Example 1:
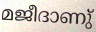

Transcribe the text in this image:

മജീദാണു്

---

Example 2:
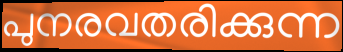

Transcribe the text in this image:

പുനരവതരിക്കുന്ന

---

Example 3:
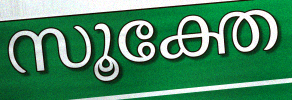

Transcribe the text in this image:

സൂക്തേ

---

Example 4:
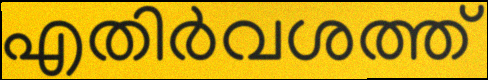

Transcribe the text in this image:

എതിർവശത്ത്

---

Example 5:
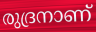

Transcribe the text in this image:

രുദ്രനാണ്